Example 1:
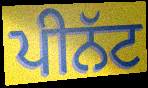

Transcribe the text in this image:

ਪੀਨੱਟ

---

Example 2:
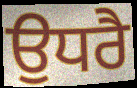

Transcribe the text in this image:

ਉਧਰੈ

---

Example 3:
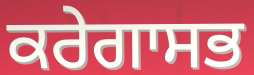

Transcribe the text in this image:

ਕਰੇਗਾਸਭ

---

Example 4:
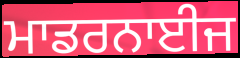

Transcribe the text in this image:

ਮਾਡਰਨਾਈਜ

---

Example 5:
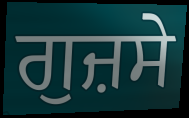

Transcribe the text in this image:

ਗੁਜ਼ਸੇ